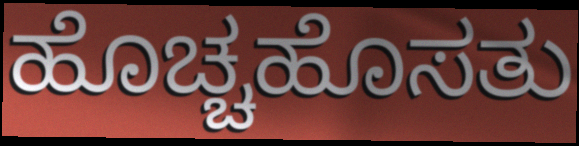
ಹೊಚ್ಚಹೊಸತು